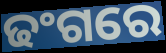
ଢଂଗରେ